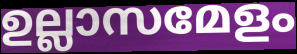
ഉല്ലാസമേളം